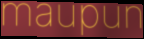
maupun